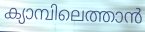
ക്യാമ്പിലെത്താൻ